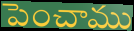
పెంచాము